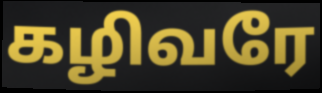
கழிவரே